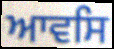
ਆਵਸਿ